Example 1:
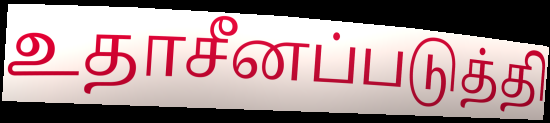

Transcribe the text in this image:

உதாசீனப்படுத்தி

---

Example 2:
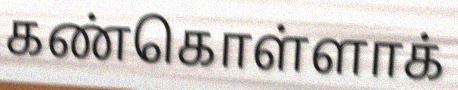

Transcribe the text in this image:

கண்கொள்ளாக்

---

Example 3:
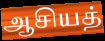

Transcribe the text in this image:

ஆசியத்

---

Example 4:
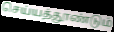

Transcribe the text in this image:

செய்யத்தூண்டும்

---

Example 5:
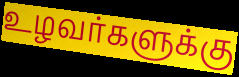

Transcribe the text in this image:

உழவர்களுக்கு